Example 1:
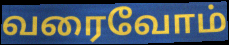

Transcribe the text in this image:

வரைவோம்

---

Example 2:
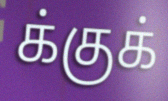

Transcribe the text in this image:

க்குக்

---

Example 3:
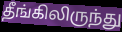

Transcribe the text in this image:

தீங்கிலிருந்து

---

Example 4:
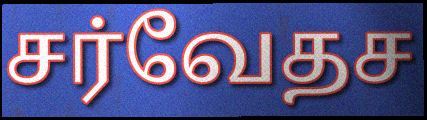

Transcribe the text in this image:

சர்வேதச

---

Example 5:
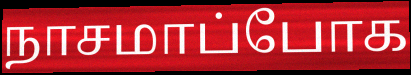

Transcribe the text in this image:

நாசமாப்போக